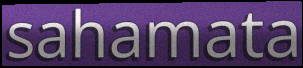
sahamata